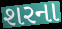
શરના